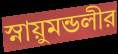
স্নায়ুমন্ডলীর